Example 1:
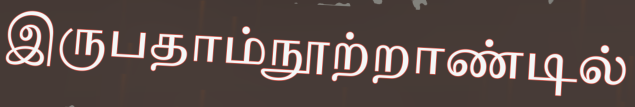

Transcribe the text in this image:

இருபதாம்நூற்றாண்டில்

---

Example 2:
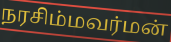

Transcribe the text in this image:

நரசிம்மவர்மன்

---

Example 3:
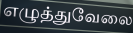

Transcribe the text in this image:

எழுத்துவேலை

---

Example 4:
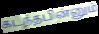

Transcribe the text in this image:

கடந்தபின்னும்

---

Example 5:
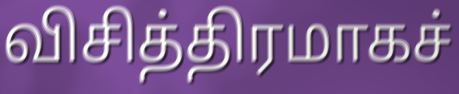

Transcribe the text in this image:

விசித்திரமாகச்